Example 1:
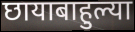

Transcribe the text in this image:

छायाबाहुल्या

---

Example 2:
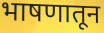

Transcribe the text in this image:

भाषणातून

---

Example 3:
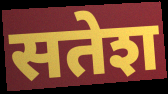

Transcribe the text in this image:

सतेश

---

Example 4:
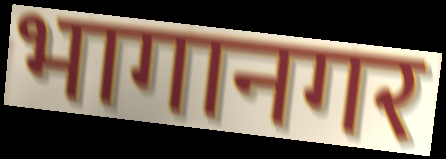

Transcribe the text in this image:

भागानगर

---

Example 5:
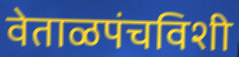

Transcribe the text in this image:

वेताळपंचविशी